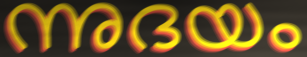
ന്നുദയം